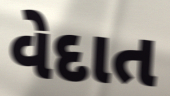
વેદાત